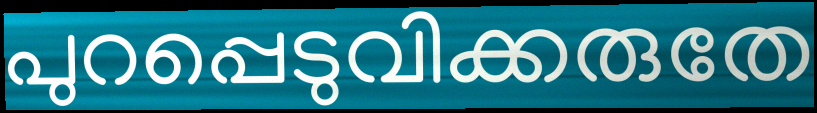
പുറപ്പെടുവിക്കരുതേ